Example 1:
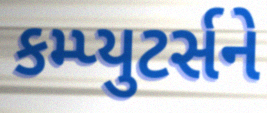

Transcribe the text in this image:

કમ્પ્યુટર્સને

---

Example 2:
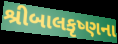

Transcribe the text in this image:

શ્રીબાલકૃષ્ણના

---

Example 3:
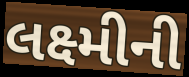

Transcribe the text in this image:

લક્ષ્મીની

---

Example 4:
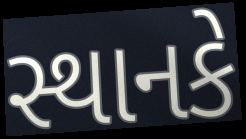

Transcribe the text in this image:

સ્થાનકે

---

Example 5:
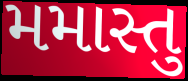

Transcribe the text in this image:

મમાસ્તુ